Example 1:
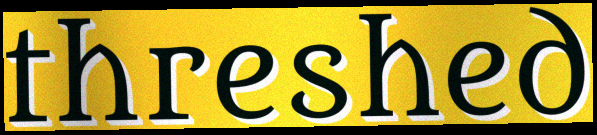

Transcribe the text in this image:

threshed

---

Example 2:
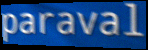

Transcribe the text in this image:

paraval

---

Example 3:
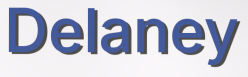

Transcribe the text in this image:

Delaney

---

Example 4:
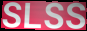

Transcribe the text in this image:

SLSS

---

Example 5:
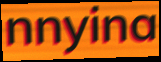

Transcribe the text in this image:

nnyina